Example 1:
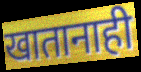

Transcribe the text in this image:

खातानाही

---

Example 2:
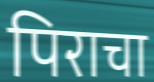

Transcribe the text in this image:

पिराचा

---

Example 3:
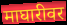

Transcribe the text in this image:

माघारीवर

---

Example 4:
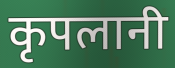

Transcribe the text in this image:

कृपलानी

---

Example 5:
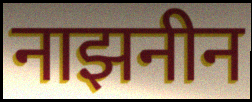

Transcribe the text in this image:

नाझनीन